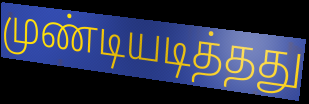
முண்டியடித்தது